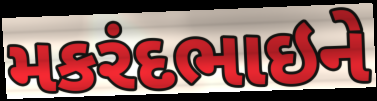
મકરંદભાઇને